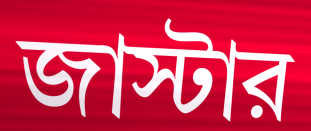
জাস্টার